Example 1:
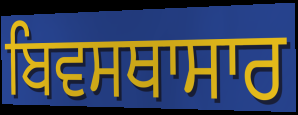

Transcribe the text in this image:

ਬਿਵਸਥਾਸਾਰ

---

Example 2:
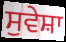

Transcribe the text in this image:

ਸੁਵੇਸ਼ਾ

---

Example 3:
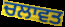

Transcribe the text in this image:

ਚਲਾਵਤ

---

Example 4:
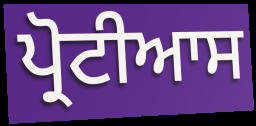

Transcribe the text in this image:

ਪ੍ਰੋਟੀਆਸ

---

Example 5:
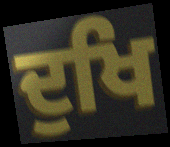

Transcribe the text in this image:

ਦੁਖਿ